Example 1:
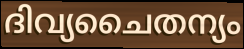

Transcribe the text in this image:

ദിവ്യചൈതന്യം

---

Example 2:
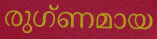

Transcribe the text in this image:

രുഗ്ണമായ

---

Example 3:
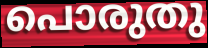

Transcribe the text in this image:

പൊരുതു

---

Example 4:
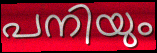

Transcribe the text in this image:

പനിയും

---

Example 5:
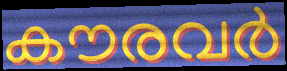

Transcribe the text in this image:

കൗരവർ